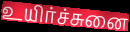
உயிர்ச்சுனை